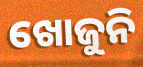
ଖୋଜୁନି